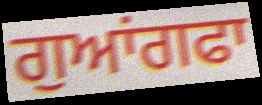
ਗੁਆਂਗਫਾ